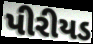
પીરીયડ